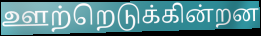
ஊற்றெடுக்கின்றன